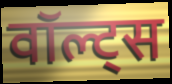
वॉल्ट्स